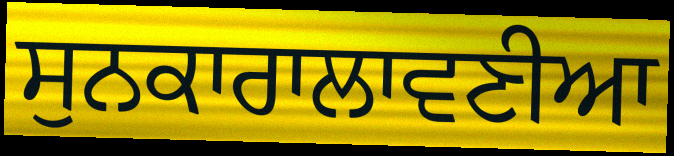
ਸੁਨਕਾਰਾਲਾਵਣੀਆ